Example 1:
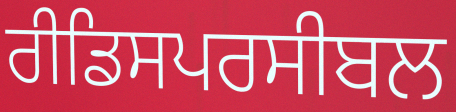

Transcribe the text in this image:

ਰੀਡਿਸਪਰਸੀਬਲ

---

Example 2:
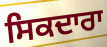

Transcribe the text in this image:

ਸਿਕਦਾਰਾ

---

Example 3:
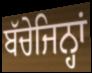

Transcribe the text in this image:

ਬੱਚੇਜਿਨ੍ਹਾਂ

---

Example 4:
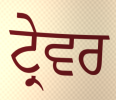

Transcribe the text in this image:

ਟ੍ਰੇਵਰ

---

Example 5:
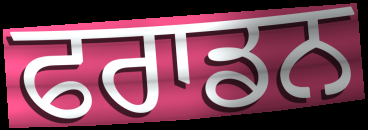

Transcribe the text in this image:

ਫਰਾਡਨ